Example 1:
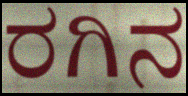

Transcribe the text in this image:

ರಗಿನ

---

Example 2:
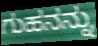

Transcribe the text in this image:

ಗುಹನನ್ನು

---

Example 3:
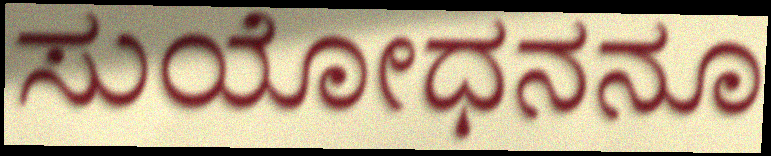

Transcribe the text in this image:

ಸುಯೋಧನನೂ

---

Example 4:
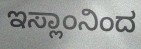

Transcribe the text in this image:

ಇಸ್ಲಾಂನಿಂದ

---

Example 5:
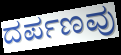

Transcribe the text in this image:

ದರ್ಪಣವು